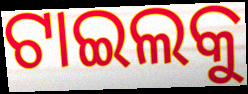
ଟାଇଲକୁ